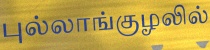
புல்லாங்குழலில்